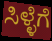
ಸಿಳ್ಳೆಗೆ